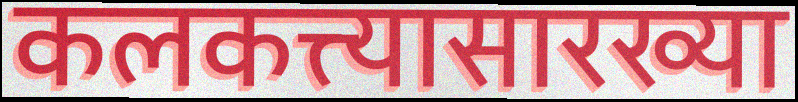
कलकत्त्यासारख्या